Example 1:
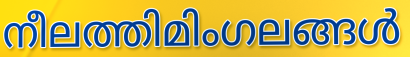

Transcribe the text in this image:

നീലത്തിമിംഗലങ്ങൾ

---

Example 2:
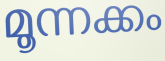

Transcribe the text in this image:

മൂന്നക്കം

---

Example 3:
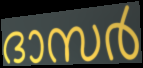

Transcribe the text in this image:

ദാസർ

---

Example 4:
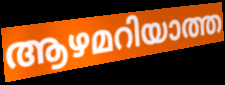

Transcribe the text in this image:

ആഴമറിയാത്ത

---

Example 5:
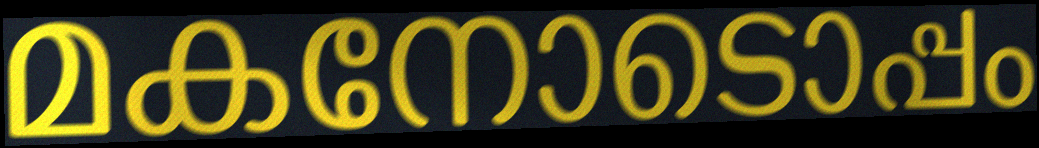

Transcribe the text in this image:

മകനോടൊപ്പം